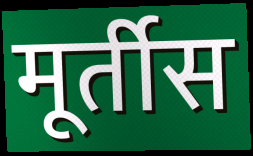
मूर्तीस